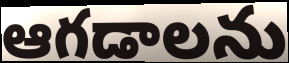
ఆగడాలను